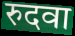
रुदवा